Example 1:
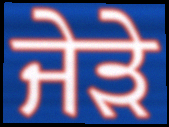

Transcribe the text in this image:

ਜੇੜੇ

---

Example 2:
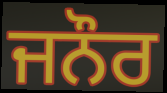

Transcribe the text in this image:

ਜਨੌਰ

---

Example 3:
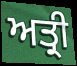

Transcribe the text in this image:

ਅਤ੍ਰੀ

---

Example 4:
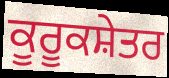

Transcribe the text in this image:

ਕੂਰੂਕਸ਼ੇਤਰ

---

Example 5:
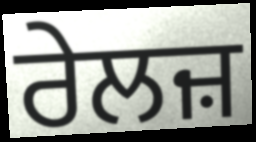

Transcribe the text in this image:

ਰੇਲਜ਼